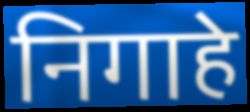
निगाहे